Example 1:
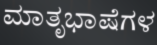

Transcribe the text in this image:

ಮಾತೃಭಾಷೆಗಳ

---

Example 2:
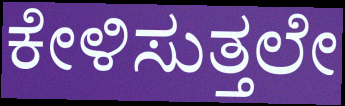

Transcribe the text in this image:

ಕೇಳಿಸುತ್ತಲೇ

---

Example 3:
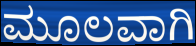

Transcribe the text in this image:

ಮೂಲವಾಗಿ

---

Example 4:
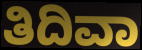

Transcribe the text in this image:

ತಿದಿವಾ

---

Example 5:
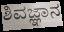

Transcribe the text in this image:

ಶಿವಜ್ಞಾನ